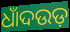
ଧାଁଦଉଡ଼